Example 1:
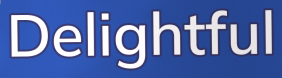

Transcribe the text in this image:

Delightful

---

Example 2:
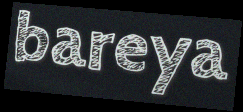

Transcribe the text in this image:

bareya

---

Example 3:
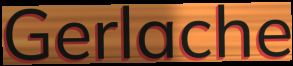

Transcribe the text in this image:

Gerlache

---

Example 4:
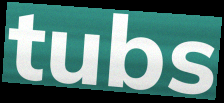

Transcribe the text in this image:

tubs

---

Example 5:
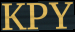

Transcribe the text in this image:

KPY